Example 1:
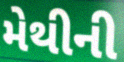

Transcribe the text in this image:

મેથીની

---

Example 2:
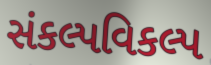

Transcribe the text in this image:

સંકલ્પવિકલ્પ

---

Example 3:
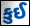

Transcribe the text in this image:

કુઈ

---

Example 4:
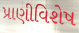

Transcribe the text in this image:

પ્રાણીવિશેષ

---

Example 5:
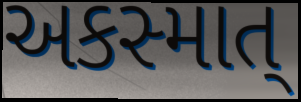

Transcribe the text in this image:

અકસ્માત્